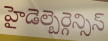
హైడెల్బెర్గెన్సిస్